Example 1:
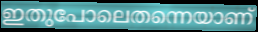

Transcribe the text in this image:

ഇതുപോലെതന്നെയാണ്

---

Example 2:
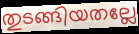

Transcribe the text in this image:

തുടങ്ങിയതല്ലേ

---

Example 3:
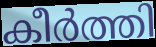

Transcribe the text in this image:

കീർത്തി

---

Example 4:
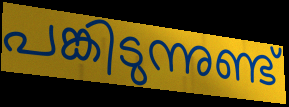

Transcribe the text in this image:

പങ്കിടുന്നുണ്ട്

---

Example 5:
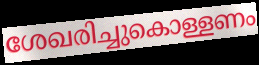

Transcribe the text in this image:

ശേഖരിച്ചുകൊള്ളണം